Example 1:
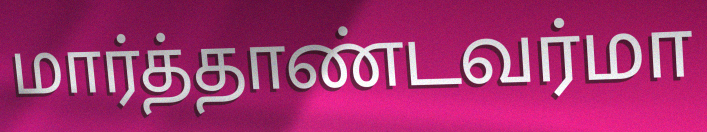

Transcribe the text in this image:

மார்த்தாண்டவர்மா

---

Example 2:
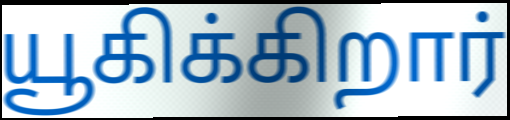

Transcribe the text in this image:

யூகிக்கிறார்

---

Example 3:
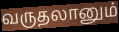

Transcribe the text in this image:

வருதலானும்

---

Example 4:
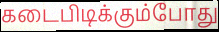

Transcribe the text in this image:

கடைபிடிக்கும்போது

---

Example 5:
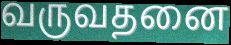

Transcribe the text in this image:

வருவதனை